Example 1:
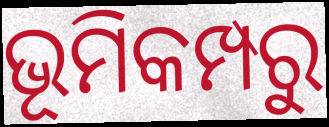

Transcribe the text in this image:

ଭୂମିକମ୍ପରୁ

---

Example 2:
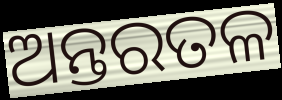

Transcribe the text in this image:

ଅନ୍ତରତଳ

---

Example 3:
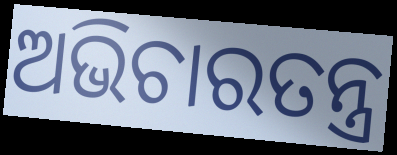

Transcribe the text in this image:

ଅଭିଚାରତନ୍ତ୍ର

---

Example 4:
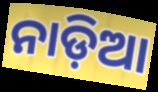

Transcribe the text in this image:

ନାଡ଼ିଆ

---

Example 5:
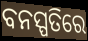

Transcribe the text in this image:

ବନସ୍ପତିରେ